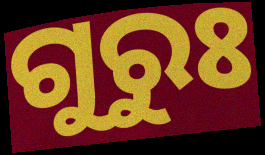
ଗୁରୁଃ